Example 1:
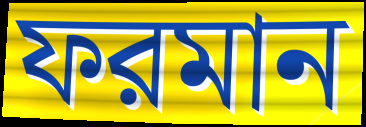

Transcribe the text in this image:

ফরমান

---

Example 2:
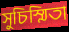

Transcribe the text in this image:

সুচিস্মিতা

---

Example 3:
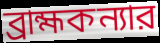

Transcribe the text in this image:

ব্রাহ্মকন্যার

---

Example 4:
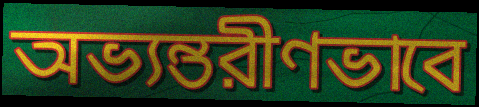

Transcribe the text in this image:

অভ্যন্তরীণভাবে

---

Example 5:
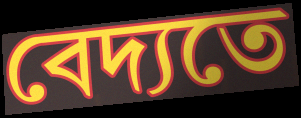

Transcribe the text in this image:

বেদ্যতে